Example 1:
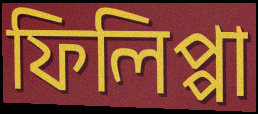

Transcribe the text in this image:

ফিলিপ্পা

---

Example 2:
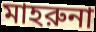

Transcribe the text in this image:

মাহরুনা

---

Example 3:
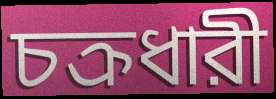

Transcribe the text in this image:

চক্রধারী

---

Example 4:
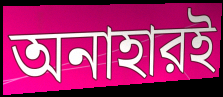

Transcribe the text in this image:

অনাহারই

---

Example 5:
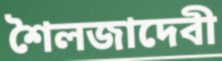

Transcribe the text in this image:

শৈলজাদেবী